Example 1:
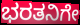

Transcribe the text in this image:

ಭರತನಿಗೇ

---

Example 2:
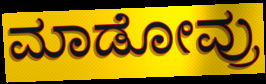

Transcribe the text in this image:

ಮಾಡೋವ್ರು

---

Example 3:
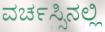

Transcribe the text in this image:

ವರ್ಚಸ್ಸಿನಲ್ಲಿ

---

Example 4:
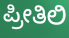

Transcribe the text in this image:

ಪ್ರೀತಿಲಿ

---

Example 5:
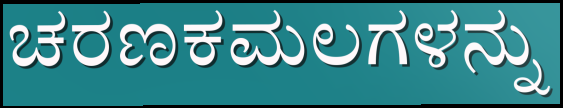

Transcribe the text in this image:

ಚರಣಕಮಲಗಳನ್ನು